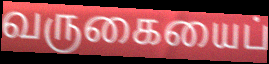
வருகையைப்